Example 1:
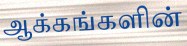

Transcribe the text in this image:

ஆக்கங்களின்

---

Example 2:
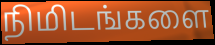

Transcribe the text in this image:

நிமிடங்களை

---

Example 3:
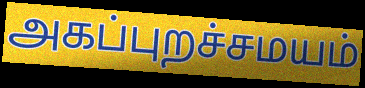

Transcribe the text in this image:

அகப்புறச்சமயம்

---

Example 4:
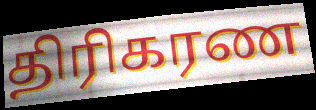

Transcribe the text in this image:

திரிகரண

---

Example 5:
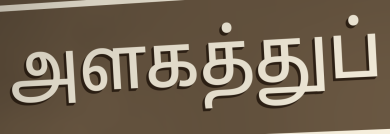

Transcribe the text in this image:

அளகத்துப்